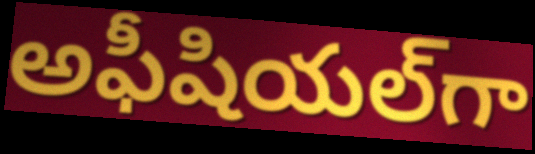
అఫీషియల్‌గా